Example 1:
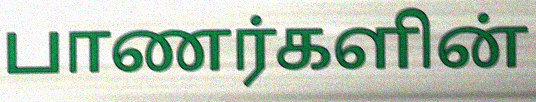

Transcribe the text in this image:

பாணர்களின்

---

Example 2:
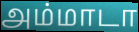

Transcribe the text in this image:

அம்மாடா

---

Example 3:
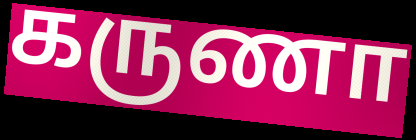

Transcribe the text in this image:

கருணா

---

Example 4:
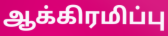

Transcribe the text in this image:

ஆக்கிரமிப்பு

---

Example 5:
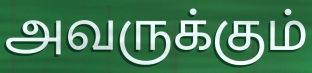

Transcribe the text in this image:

அவருக்கும்